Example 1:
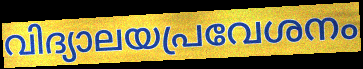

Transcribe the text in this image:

വിദ്യാലയപ്രവേശനം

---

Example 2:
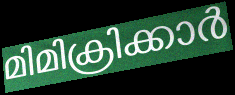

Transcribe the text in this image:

മിമിക്രിക്കാർ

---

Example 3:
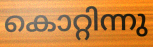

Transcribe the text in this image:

കൊറ്റിന്നു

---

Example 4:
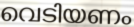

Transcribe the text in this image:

വെടിയണം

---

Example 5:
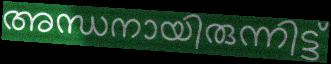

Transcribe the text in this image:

അന്ധനായിരുന്നിട്ട്